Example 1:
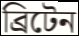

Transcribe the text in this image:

ব্রিটেন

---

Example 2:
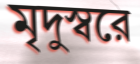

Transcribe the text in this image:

মৃদুস্বরে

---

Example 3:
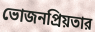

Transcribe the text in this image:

ভোজনপ্রিয়তার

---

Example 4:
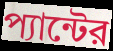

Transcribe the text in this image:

প্যান্টের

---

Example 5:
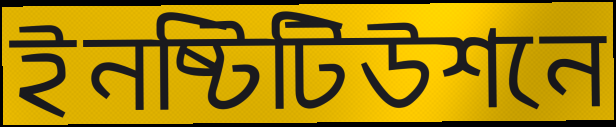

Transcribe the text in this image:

ইনষ্টিটিউশনে